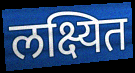
लक्ष्यित